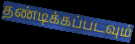
தண்டிக்கப்படவும்